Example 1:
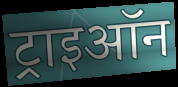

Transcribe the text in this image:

ट्राइऑन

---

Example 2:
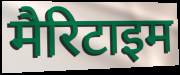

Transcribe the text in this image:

मैरिटाइम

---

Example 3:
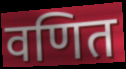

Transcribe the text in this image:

वणित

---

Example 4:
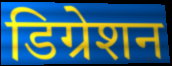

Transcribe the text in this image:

डिग्रेशन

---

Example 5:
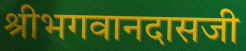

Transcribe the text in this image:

श्रीभगवानदासजी